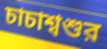
চাচাশ্বশুর